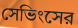
সেভিংসের